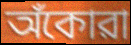
অঁকোৱা